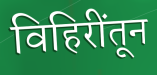
विहिरींतून